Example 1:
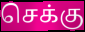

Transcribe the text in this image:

செக்கு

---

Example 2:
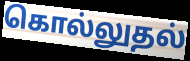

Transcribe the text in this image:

கொல்லுதல்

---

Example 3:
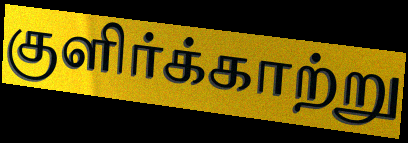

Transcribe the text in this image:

குளிர்க்காற்று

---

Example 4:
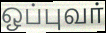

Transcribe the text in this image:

ஒப்புவர்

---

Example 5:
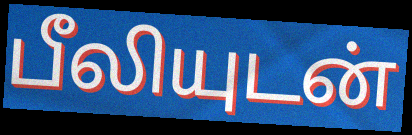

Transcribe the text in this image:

பீலியுடன்